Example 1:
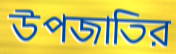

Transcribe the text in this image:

উপজাতির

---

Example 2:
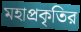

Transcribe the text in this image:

মহাপ্রকৃতির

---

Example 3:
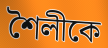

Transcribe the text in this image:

শৈলীকে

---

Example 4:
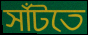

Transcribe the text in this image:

সাঁটতে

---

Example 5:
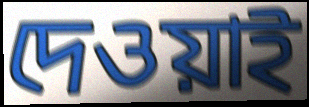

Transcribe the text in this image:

দেওয়াই